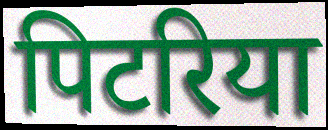
पिटरिया